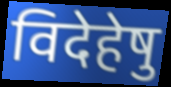
विदेहेषु